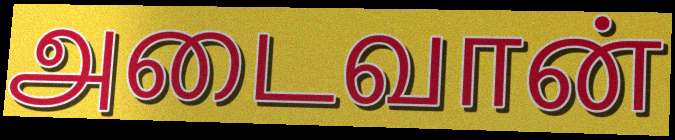
அடைவான்